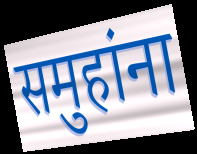
समुहांना